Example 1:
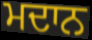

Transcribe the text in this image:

ਮਦਾਨ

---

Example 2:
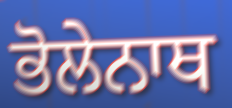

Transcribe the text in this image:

ਭੋਲੇਨਾਥ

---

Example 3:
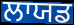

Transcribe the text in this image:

ਲਾਯਡ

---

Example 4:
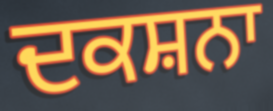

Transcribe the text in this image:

ਦਕਸ਼ਨਾ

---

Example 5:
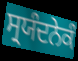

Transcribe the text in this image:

ਸ੍ਰਯੰਦਨੇਕੰ